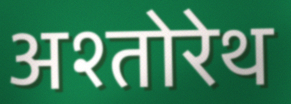
अश्तोरेथ